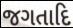
જગતાદિ